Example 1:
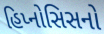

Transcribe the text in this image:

હિપ્નોસિસનો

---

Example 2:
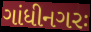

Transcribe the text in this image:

ગાંધીનગરઃ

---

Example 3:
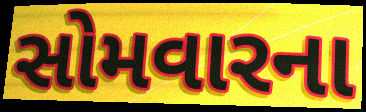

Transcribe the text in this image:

સોમવારના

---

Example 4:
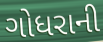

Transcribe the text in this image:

ગોધરાની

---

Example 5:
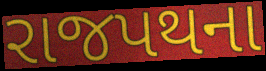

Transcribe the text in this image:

રાજપથના